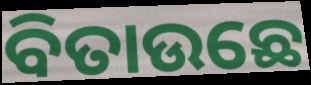
ବିତାଉଛେ